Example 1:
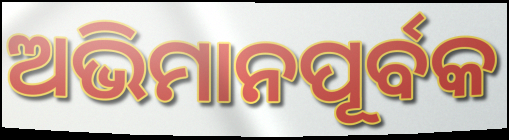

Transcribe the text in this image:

ଅଭିମାନପୂର୍ବକ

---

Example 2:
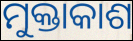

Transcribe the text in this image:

ମୁକ୍ତାକାଶ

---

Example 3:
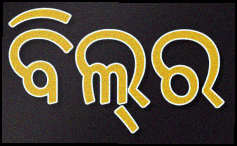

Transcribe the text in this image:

ବିଲ୍‌ର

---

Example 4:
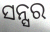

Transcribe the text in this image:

ସନ୍ସର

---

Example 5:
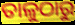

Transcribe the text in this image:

ତାଳୁଠାରୁ